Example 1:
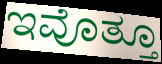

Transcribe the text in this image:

ಇವೊತ್ತೂ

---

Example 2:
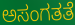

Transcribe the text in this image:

ಅಸಂಗತತೆ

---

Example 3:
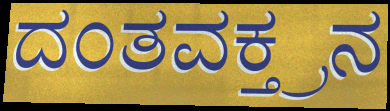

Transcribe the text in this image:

ದಂತವಕ್ತ್ರನ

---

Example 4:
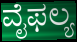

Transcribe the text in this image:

ವೈಫಲ್ಯ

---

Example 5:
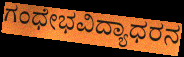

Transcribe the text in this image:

ಗಂಧೇಭವಿದ್ಯಾಧರನ